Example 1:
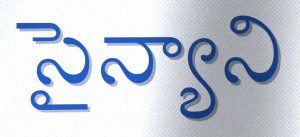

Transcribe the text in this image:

సైన్యాని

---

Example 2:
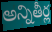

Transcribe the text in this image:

అన్నితీర్ల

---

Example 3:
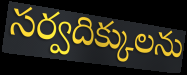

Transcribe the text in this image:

సర్వదిక్కులను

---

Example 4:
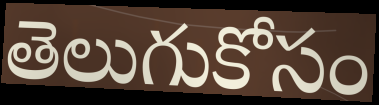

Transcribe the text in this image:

తెలుగుకోసం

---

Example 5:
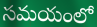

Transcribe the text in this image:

సమయంలో